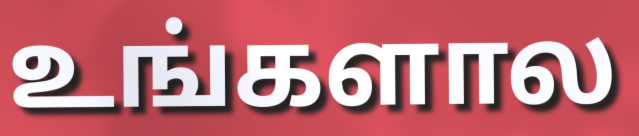
உங்களால